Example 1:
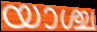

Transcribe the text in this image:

യാശ്ച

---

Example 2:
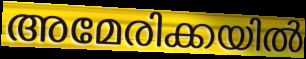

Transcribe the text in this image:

അമേരിക്കയിൽ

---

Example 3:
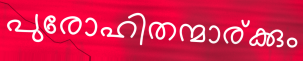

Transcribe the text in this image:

പുരോഹിതന്മാര്ക്കും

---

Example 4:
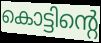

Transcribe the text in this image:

കൊട്ടിന്റെ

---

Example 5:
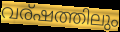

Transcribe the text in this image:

വര്ഷത്തിലും